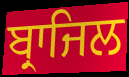
ਬ੍ਰਾਜਿਲ